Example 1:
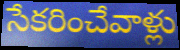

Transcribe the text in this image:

సేకరించేవాళ్లు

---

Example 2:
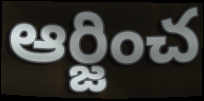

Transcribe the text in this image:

ఆర్జించ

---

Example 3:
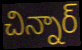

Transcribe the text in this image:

చిన్నార్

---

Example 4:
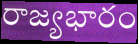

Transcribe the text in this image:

రాజ్యభారం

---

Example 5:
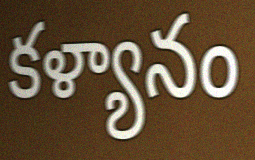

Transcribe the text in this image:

కళ్యానం